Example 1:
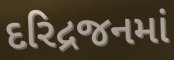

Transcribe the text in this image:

દરિદ્રજનમાં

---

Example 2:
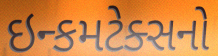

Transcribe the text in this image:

ઇન્કમટેક્સનો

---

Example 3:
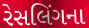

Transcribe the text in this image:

રેસલિંગના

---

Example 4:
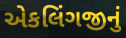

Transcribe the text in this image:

એકલિંગજીનું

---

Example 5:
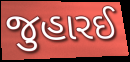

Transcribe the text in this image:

જુહારઈ